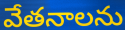
వేతనాలను